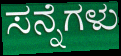
ಸನ್ನೆಗಳು